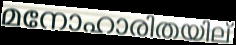
മനോഹാരിതയില്